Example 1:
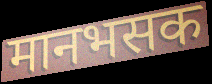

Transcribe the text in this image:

मानभसक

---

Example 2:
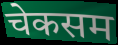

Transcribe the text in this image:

चेकसम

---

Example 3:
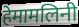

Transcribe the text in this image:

हेमामलिनी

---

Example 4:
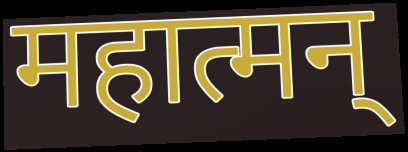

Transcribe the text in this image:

महात्मन्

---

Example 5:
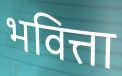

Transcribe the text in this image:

भवित्ता